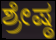
ಶ್ರೇಷ್ಠ